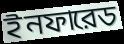
ইনফারেড